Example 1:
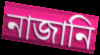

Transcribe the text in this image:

নাজানি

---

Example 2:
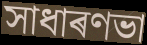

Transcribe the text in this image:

সাধাৰণভা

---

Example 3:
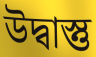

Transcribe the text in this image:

উদ্বাস্তু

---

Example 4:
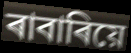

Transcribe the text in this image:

ৰাবাৰিয়ে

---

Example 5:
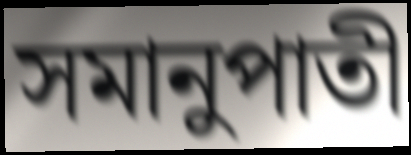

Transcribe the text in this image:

সমানুপাতী